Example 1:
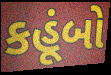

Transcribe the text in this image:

કહૂંબો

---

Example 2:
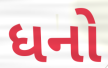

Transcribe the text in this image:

ધનો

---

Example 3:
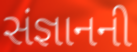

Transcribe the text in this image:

સંજ્ઞાનની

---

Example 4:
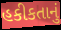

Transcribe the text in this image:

હકીકતાનું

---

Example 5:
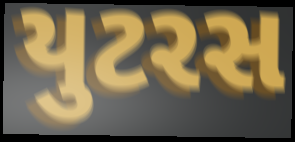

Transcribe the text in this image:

યુટરસ